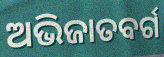
ଅଭିଜାତବର୍ଗ